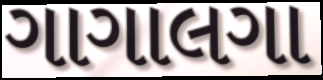
ગાગાલગા